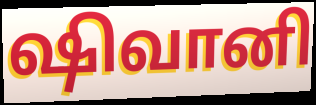
ஷிவானி